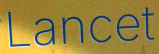
Lancet